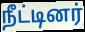
நீட்டினர்